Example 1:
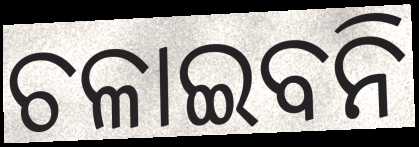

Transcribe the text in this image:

ଚଳାଇବନି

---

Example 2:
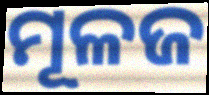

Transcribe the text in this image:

ମୂଳଜ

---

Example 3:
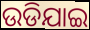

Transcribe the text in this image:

ଉଡିଯାଇ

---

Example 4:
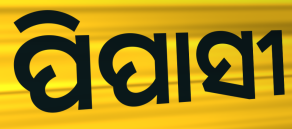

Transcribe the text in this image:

ପିପାସୀ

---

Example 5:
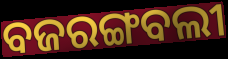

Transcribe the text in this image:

ବଜରଙ୍ଗବଲୀ